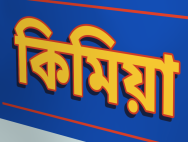
কিমিয়া